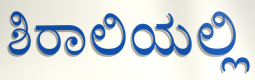
ಶಿರಾಲಿಯಲ್ಲಿ